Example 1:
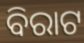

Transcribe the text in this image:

ବିରାଟ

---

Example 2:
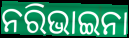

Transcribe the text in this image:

ନରିଭାଇନା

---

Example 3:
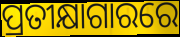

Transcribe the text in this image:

ପ୍ରତୀକ୍ଷାଗାରରେ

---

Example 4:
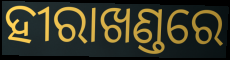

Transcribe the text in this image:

ହୀରାଖଣ୍ଡରେ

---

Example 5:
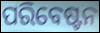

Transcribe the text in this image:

ପରିବେଷ୍ଟନ